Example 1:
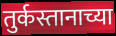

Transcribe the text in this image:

तुर्कस्तानाच्या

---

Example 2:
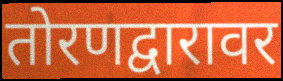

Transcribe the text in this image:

तोरणद्वारावर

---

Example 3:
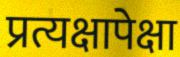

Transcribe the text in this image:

प्रत्यक्षापेक्षा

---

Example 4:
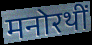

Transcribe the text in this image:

मनोरथीं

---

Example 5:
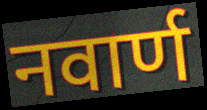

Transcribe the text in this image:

नवार्ण